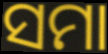
ସମା